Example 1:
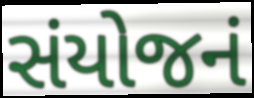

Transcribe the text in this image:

સંયોજનં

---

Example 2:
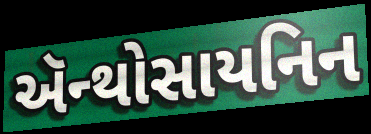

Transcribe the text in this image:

ઍન્થોસાયનિન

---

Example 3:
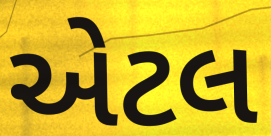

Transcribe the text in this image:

એટલ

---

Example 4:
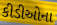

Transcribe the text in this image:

કીડીઓના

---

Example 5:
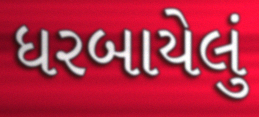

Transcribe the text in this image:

ધરબાયેલું